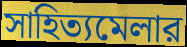
সাহিত্যমেলার